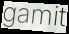
gamit